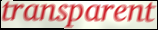
transparent